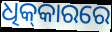
ଧିକ୍‌କାରରେ